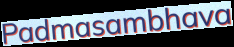
Padmasambhava